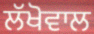
ਲੱਖੋਵਾਲ